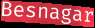
Besnagar